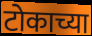
टोकाच्या